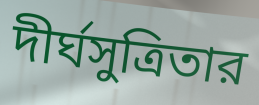
দীর্ঘসুত্রিতার